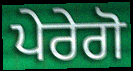
ਪੇਰੇਗੋ